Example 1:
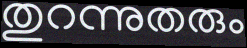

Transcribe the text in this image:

തുറന്നുതരും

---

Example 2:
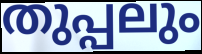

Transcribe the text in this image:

തുപ്പലും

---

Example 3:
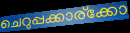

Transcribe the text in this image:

ചെറുപ്പക്കാര്ക്കോ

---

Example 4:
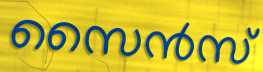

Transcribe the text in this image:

സൈൻസ്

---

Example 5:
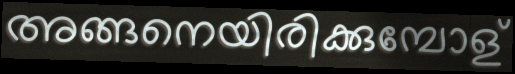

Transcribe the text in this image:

അങ്ങനെയിരിക്കുമ്പോള്